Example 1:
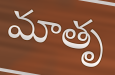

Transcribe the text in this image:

మాతృ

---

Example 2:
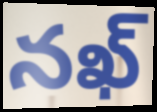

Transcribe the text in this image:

నఖ్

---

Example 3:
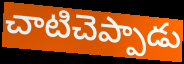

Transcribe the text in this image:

చాటిచెప్పాడు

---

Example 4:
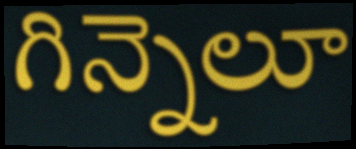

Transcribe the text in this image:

గిన్నెలూ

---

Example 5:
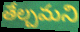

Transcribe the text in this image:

తేల్చమని